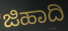
ಜಿಹಾದಿ